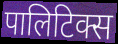
पालिटिक्स